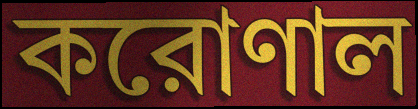
করোণাল